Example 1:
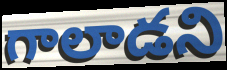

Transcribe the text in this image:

గాలాడని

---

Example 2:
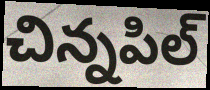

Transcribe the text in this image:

చిన్నపిల్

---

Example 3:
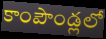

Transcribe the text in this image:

కాంపౌండ్లలో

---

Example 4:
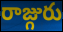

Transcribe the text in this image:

రాజ్గురు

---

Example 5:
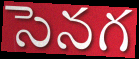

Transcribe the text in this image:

సెనగ